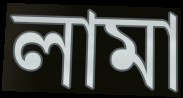
লামা